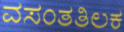
ವಸಂತತಿಲಕ